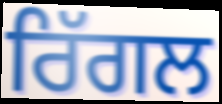
ਰਿੱਗਲ